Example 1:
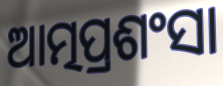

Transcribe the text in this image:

ଆତ୍ମପ୍ରଶଂସା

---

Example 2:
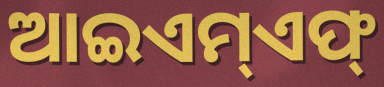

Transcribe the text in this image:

ଆଇଏମ୍ଏଫ୍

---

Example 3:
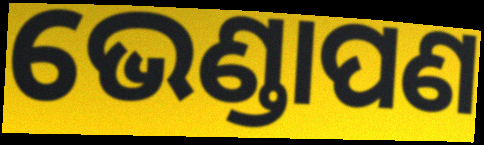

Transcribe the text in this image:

ଭେଣ୍ଡାପଣ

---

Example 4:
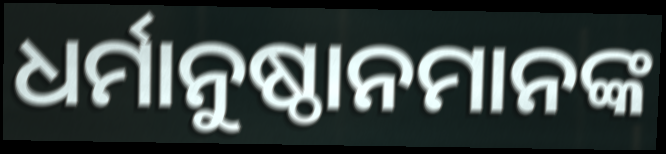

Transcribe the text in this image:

ଧର୍ମାନୁଷ୍ଠାନମାନଙ୍କ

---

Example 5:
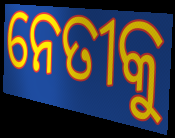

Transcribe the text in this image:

ନେତୀକୁ